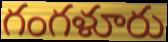
గంగళూరు